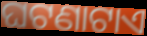
ଘଟଣାଟାଏ